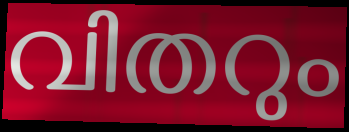
വിതറും